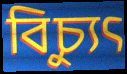
বিচ্যুৎ